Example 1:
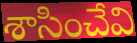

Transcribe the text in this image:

శాసించేవి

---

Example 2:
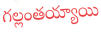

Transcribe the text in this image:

గల్లంతయ్యాయి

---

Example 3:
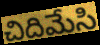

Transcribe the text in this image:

చిదిమేసి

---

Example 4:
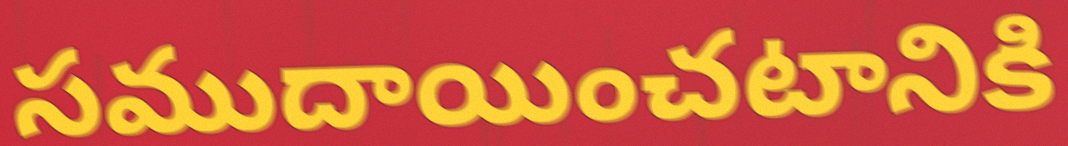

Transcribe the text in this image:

సముదాయించటానికి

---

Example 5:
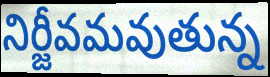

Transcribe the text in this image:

నిర్జీవమవుతున్న